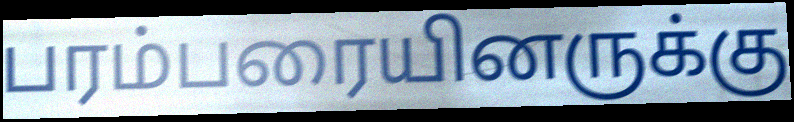
பரம்பரையினருக்கு